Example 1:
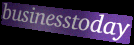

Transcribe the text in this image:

businesstoday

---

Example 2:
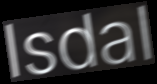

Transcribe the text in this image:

Isdal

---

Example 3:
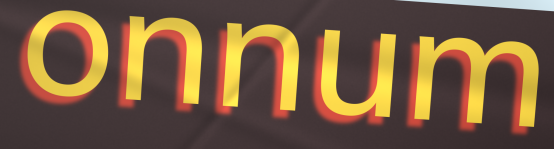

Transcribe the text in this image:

onnum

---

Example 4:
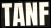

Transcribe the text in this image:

TANF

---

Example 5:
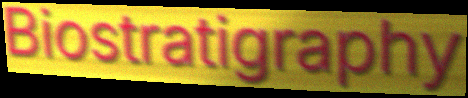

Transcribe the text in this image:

Biostratigraphy